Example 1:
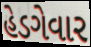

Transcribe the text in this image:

હેડગેવાર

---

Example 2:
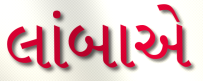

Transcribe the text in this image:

લાંબાએ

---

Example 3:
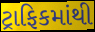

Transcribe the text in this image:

ટ્રાફિકમાંથી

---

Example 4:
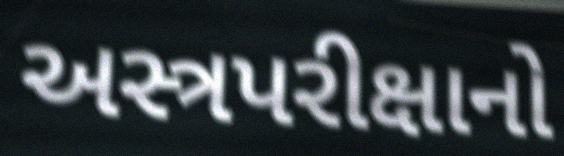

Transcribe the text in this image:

અસ્ત્રપરીક્ષાનો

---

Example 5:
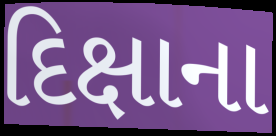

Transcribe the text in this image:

દિક્ષાના